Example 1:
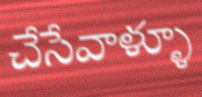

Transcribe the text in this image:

చేసేవాళ్ళూ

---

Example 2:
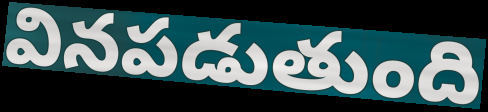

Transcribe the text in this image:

వినపడుతుంది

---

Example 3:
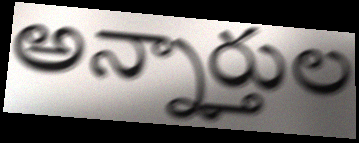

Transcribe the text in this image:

అన్నార్తుల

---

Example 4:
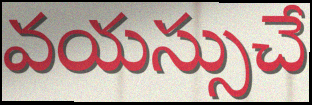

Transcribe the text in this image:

వయస్సుచే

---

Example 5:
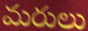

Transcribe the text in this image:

మరులు